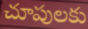
చూపులకు